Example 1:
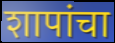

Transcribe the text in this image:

शापांचा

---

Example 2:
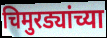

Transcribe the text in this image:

चिमुरड्यांच्या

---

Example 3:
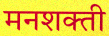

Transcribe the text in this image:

मनशक्ती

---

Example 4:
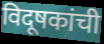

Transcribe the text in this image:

विदूषकांची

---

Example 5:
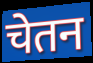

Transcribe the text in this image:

चेतन